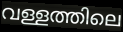
വള്ളത്തിലെ